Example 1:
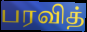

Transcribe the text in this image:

பரவித்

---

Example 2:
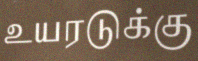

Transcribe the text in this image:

உயரடுக்கு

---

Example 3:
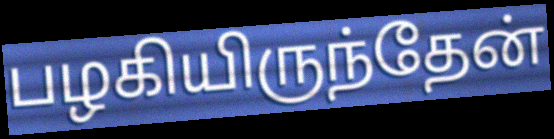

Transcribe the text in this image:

பழகியிருந்தேன்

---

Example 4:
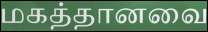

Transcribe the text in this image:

மகத்தானவை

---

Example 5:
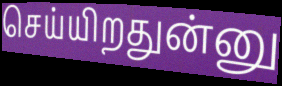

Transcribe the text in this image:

செய்யிறதுன்னு